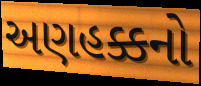
અણહક્કનો